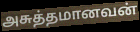
அசுத்தமானவன்